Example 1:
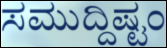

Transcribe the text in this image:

ಸಮುದ್ದಿಷ್ಟಂ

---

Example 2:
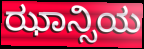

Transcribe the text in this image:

ಝಾನ್ಸಿಯ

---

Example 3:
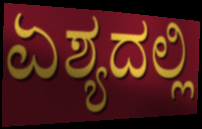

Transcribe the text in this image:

ಏಶ್ಯದಲ್ಲಿ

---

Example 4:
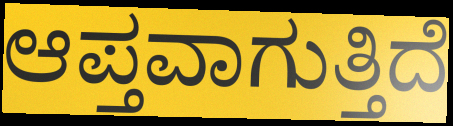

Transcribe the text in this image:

ಆಪ್ತವಾಗುತ್ತಿದೆ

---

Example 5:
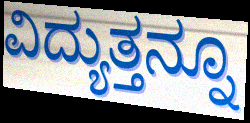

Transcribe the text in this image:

ವಿದ್ಯುತ್ತನ್ನೂ